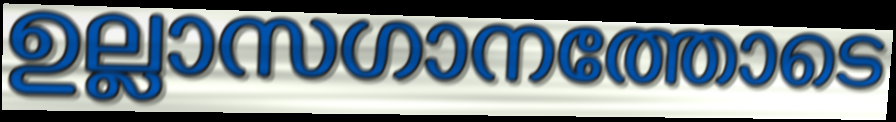
ഉല്ലാസഗാനത്തോടെ